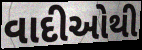
વાદીઓથી